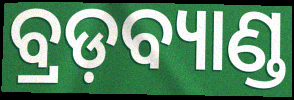
ବ୍ରଡ଼ବ୍ୟାଣ୍ଡ